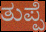
ತುಪ್ಪೆ